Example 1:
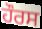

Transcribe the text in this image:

ਹੌਰਸ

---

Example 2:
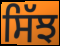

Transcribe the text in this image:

ਸਿੱਝ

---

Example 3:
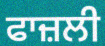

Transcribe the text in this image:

ਫਾਜ਼ਲੀ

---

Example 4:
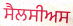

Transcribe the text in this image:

ਸੈਲਸੀਅਸ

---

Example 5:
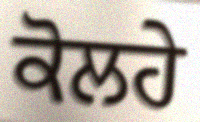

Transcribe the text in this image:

ਕੋਲਹੇ